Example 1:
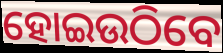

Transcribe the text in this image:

ହୋଇଉଠିବେ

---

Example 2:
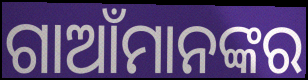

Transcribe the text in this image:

ଗାଆଁମାନଙ୍କର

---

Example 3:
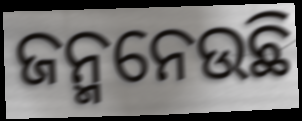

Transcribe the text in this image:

ଜନ୍ମନେଉଛି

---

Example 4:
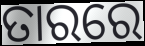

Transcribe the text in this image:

ତାରରେ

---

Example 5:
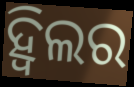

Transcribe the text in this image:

ହ୍ୱିଲର